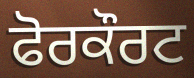
ਫੋਰਕੌਰਟ